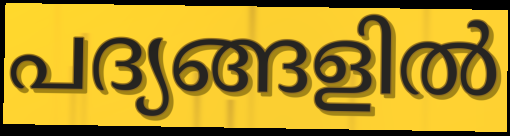
പദ്യങ്ങളിൽ